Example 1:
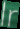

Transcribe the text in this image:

lr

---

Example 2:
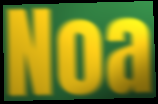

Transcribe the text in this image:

Noa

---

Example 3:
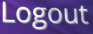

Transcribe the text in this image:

Logout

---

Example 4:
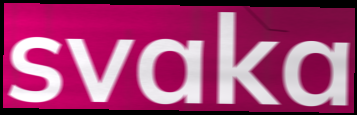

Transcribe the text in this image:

svaka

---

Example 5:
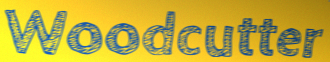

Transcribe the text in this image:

Woodcutter